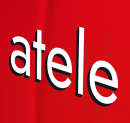
atele